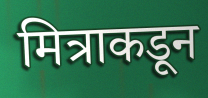
मित्राकडून